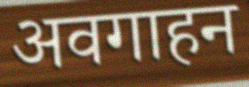
अवगाहन